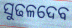
ସୁଢଳଦେବ